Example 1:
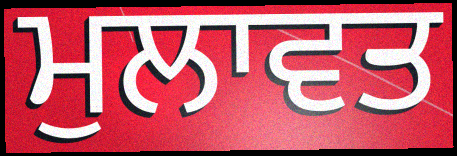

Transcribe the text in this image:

ਮੁਲਾਵਤ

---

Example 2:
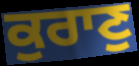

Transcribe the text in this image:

ਕੁਰਾਣੁ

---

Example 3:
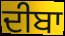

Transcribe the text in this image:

ਦੀਬਾ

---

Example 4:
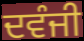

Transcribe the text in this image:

ਦਵੰਜੀ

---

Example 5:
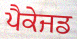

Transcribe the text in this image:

ਪੈਕੇਜਡ